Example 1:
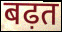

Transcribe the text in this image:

बढ़त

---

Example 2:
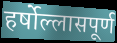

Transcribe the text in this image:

हर्षोल्लासपूर्ण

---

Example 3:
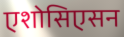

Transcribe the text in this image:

एशोसिएसन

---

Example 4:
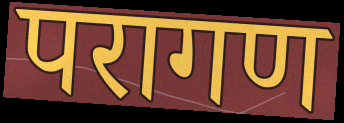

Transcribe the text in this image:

परागण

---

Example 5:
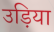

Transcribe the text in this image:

उड़िया